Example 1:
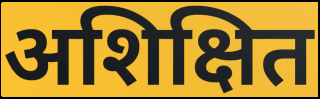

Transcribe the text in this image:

अशिक्षित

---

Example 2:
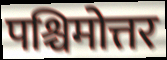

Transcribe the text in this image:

पश्चिमोत्तर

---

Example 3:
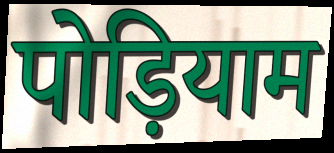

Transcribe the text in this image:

पोड़ियाम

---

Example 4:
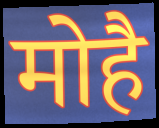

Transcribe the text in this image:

मोहै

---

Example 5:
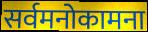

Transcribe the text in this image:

सर्वमनोकामना